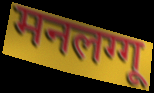
मनलग्गू